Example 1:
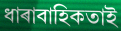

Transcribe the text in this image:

ধাৰাবাহিকতাই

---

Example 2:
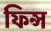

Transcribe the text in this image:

ফিন্স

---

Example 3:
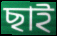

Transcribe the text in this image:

ছাই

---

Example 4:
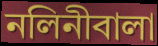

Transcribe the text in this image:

নলিনীবালা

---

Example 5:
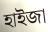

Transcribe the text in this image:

হাইজা